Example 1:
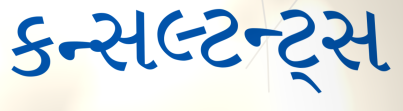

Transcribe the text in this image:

કન્સલ્ટન્ટ્સ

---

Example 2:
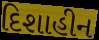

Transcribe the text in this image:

દિશાહીન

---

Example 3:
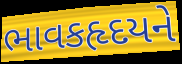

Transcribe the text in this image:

ભાવકહૃદયને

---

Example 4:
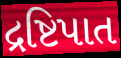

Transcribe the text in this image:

દ્રષ્ટિપાત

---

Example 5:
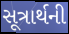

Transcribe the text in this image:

સૂત્રાર્થની